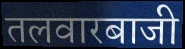
तलवारबाजी